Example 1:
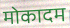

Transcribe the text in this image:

मोकादम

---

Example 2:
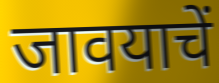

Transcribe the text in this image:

जावयाचें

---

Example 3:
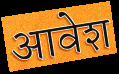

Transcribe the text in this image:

आवेश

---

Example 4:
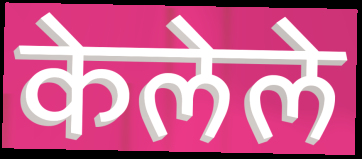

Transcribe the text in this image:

केलेले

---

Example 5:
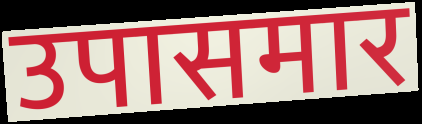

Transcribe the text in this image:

उपासमार